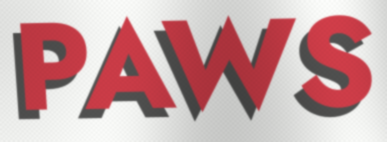
PAWS